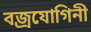
বজ্ৰযোগিনী